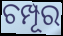
ଚମ୍ପୂର